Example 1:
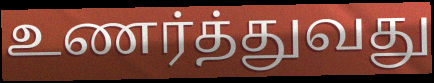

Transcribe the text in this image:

உணர்த்துவது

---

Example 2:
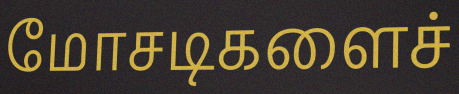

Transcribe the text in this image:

மோசடிகளைச்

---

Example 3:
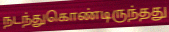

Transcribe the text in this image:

நடந்துகொண்டிருந்தது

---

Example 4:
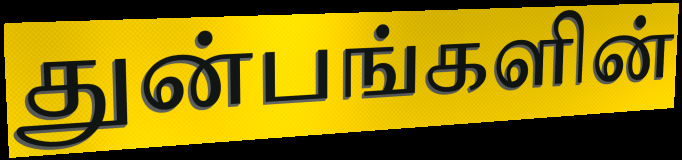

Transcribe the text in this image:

துன்பங்களின்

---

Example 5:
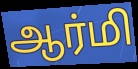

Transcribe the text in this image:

ஆர்மி